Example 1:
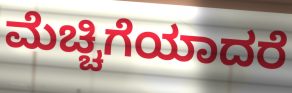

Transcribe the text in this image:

ಮೆಚ್ಚಿಗೆಯಾದರೆ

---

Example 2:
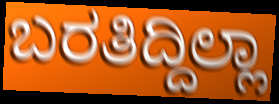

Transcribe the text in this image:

ಬರತಿದ್ದಿಲ್ಲಾ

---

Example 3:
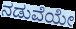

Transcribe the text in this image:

ನಡುವೆಯೇ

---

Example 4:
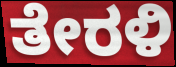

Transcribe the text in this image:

ತೇರಳಿ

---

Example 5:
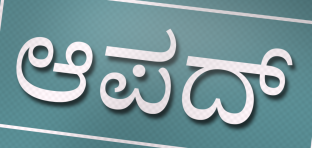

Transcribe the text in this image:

ಆಪದ್